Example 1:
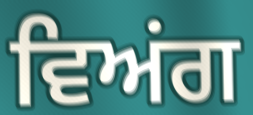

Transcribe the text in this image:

ਵਿਅਂਗ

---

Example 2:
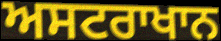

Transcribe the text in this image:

ਅਸਟਰਾਖਾਨ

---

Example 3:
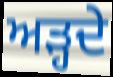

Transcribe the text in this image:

ਅੜ੍ਹਦੇ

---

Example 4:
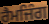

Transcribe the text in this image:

ਰੈਮਜਿੰਗ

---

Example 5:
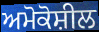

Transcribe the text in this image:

ਅਮੋਕੋਸ਼ੀਲ